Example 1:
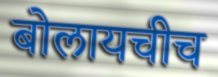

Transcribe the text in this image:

बोलायचीच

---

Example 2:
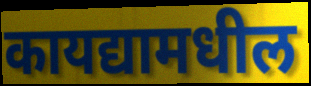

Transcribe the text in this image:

कायद्यामधील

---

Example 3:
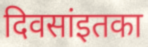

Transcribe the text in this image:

दिवसांइतका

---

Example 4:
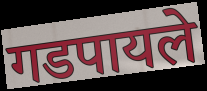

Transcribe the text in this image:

गडपायले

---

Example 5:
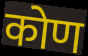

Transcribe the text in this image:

कोण